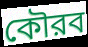
কৌরব